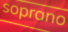
soprano